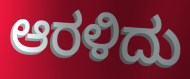
ಆರಳಿದು